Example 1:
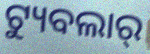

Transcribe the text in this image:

ଟ୍ୟୁବଲାର୍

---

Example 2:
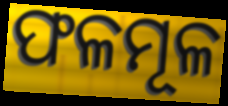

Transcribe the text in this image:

ଫଳମୂଳ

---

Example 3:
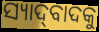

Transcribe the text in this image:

ସ୍ୟାଦ୍‌ବାଦକୁ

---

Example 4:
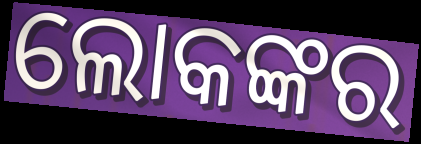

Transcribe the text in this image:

ଲୋକଙ୍କର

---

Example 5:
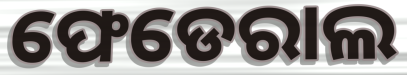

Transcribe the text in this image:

ଫେଡେରାଲ